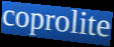
coprolite